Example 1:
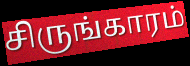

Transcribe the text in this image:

சிருங்காரம்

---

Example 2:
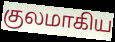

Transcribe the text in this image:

குலமாகிய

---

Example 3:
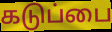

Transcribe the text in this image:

கடுப்பை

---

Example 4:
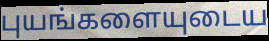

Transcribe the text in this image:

புயங்களையுடைய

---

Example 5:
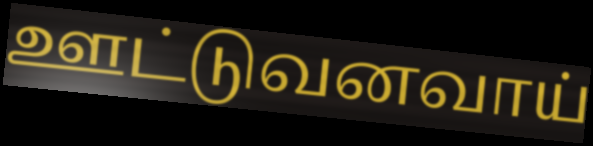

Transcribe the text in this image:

ஊட்டுவனவாய்